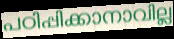
പഠിപ്പിക്കാനാവില്ല